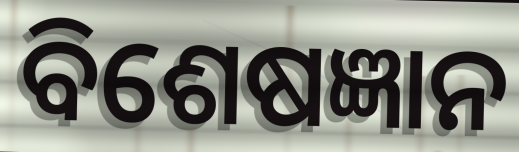
ବିଶେଷଜ୍ଞାନ